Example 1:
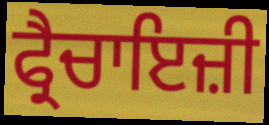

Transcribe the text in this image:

ਫ੍ਰੈਚਾਇਜ਼ੀ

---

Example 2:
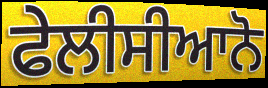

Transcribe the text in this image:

ਫੇਲੀਸੀਆਨੋ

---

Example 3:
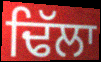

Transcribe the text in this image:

ਢਿੱਲਾ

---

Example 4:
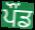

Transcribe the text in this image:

ਪੌਂਡ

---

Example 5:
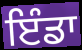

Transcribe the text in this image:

ਇੰਡਾ